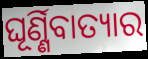
ଘୂର୍ଣ୍ଣିବାତ୍ୟାର